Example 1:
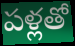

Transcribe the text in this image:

పళ్లతో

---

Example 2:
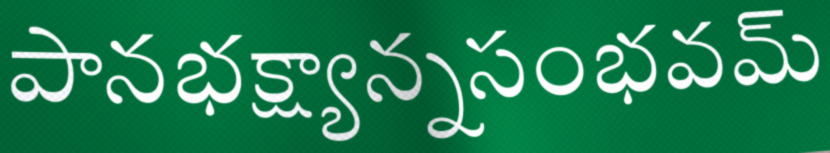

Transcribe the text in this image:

పానభక్ష్యాన్నసంభవమ్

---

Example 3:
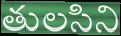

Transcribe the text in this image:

తులసిని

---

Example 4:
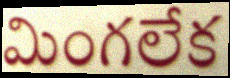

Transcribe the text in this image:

మింగలేక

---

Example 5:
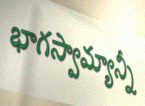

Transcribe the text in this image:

భాగస్వామ్యాన్నీ